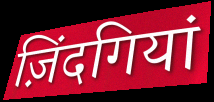
ज़िंदगियां